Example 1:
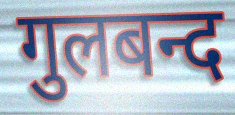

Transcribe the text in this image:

गुलबन्द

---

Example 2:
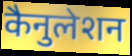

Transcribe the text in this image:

कैनुलेशन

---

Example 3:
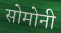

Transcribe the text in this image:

सोमोनी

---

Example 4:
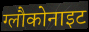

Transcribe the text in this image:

ग्लौकोनाइट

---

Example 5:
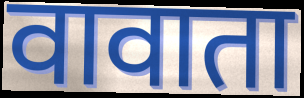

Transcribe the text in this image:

वावाता